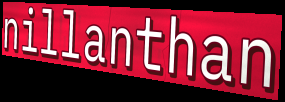
nillanthan